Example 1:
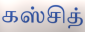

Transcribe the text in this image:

கஸ்சித்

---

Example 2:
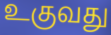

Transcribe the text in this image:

உகுவது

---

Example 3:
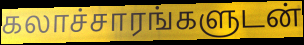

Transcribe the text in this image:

கலாச்சாரங்களுடன்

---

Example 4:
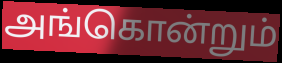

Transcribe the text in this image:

அங்கொன்றும்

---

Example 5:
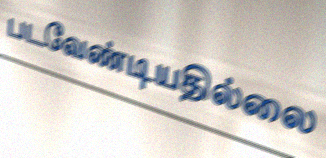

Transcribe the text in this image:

படவேண்டியதில்லை